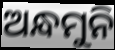
ଅନ୍ଧମୁନି